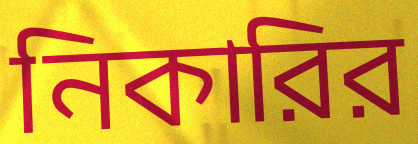
নিকারির